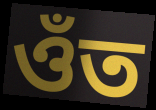
ওঁত